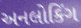
અનલોકિંગ